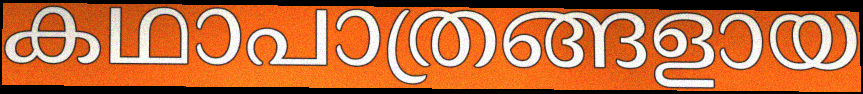
കഥാപാത്രങ്ങളായ